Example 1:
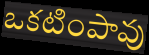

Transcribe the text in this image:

ఒకటింపావు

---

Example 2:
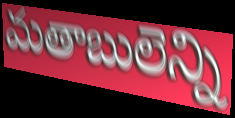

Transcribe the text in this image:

మతాబులెన్ని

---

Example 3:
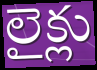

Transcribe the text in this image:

లైక్లు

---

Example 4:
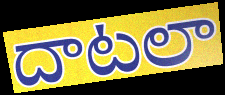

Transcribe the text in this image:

దాటలా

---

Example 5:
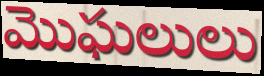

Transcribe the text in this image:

మొఘలులు